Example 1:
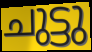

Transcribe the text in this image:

ചുട്ടു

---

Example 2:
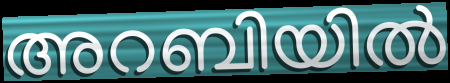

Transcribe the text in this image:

അറബിയിൽ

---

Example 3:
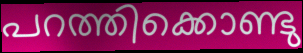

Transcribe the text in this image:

പറത്തിക്കൊണ്ടു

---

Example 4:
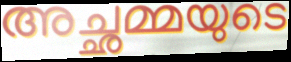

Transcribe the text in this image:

അച്ഛമ്മയുടെ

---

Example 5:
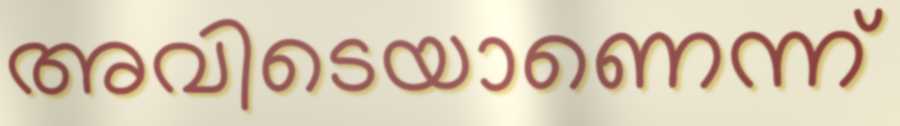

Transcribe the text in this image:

അവിടെയാണെന്ന്